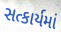
સત્કાર્યમાં